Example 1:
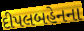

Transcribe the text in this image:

દીપલબહેનના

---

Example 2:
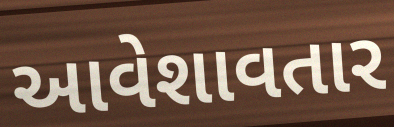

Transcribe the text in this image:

આવેશાવતાર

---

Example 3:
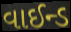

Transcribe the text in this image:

વાઈન્ડ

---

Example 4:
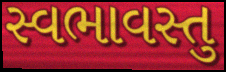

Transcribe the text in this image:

સ્વભાવસ્તુ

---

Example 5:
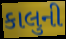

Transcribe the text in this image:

કાલુની